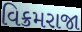
વિક્રમરાજા